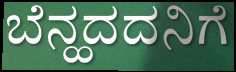
ಬೆನ್ಹದದನಿಗೆ